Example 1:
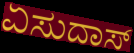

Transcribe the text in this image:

ಏಸುದಾಸ್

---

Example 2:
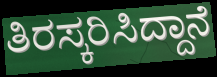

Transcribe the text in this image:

ತಿರಸ್ಕರಿಸಿದ್ದಾನೆ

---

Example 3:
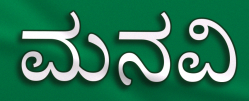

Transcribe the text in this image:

ಮನವಿ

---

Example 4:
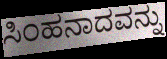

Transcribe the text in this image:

ಸಿಂಹನಾದವನ್ನು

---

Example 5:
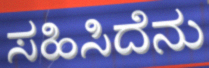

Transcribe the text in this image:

ಸಹಿಸಿದೆನು